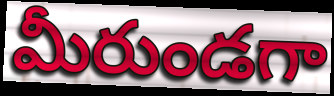
మీరుండగా